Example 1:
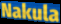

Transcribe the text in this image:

Nakula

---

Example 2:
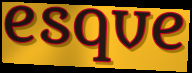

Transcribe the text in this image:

esque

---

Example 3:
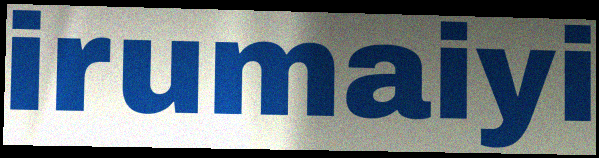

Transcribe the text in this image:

irumaiyi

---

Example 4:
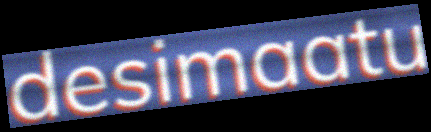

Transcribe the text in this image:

desimaatu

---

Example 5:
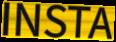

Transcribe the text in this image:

INSTA